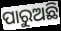
ପାରୁଅଛି